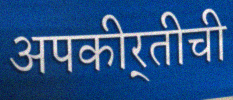
अपकीर्तीची